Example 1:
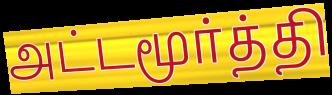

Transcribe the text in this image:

அட்டமூர்த்தி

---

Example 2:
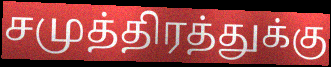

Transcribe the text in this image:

சமுத்திரத்துக்கு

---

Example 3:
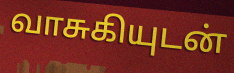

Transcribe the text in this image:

வாசுகியுடன்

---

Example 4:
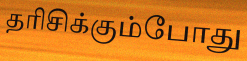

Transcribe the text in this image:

தரிசிக்கும்போது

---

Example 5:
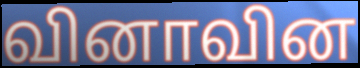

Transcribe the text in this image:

வினாவின